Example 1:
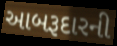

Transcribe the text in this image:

આબરૂદારની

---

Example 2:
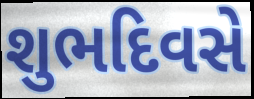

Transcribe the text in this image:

શુભદિવસે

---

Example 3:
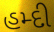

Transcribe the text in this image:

હમ્દી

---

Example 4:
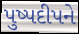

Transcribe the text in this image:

પુષ્પદીપને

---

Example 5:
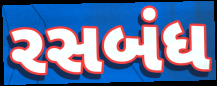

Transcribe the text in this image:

રસબંધ